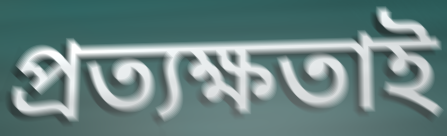
প্রত্যক্ষতাই